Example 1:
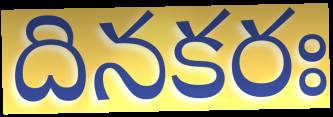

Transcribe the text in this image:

దినకరః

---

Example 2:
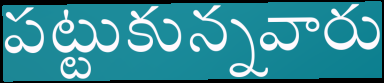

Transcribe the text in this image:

పట్టుకున్నవారు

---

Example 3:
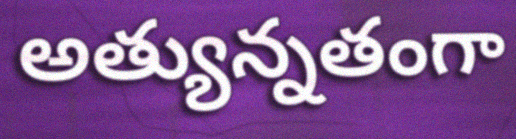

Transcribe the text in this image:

అత్యున్నతంగా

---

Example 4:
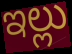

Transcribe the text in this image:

ఇల్లు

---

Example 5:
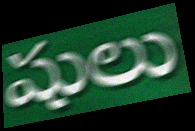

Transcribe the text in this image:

షులు